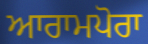
ਆਰਾਮਪੋਰਾ